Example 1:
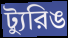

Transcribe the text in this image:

ট্যুরিঙ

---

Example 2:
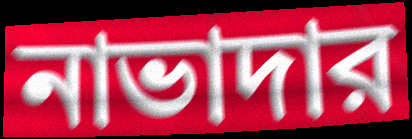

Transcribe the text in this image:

নাভাদার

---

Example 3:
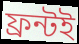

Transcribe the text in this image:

ফ্রন্টই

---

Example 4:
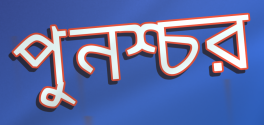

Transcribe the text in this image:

পুনশ্চর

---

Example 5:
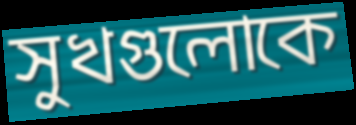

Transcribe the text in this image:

সুখগুলোকে